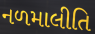
નળમાલીતિ